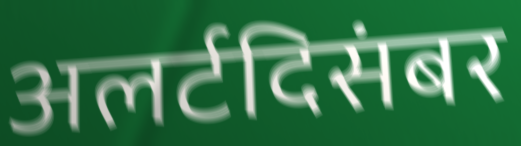
अलर्टदिसंबर